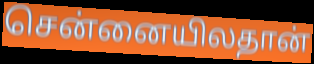
சென்னையிலதான்